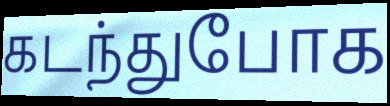
கடந்துபோக